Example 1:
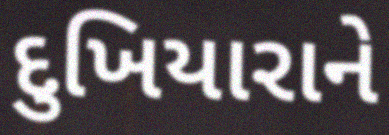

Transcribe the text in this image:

દુખિયારાને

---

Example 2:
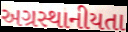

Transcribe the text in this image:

અગ્રસ્થાનીયતા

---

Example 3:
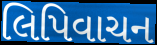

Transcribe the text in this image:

લિપિવાચન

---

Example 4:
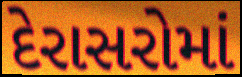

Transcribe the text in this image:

દેરાસરોમાં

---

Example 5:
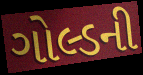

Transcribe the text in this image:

ગોલ્ડની